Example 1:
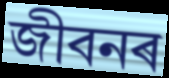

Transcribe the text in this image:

জীবনৰ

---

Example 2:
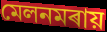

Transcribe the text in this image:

মেলনমৰায়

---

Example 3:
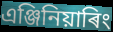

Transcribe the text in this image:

এঞ্জিনিয়াৰিং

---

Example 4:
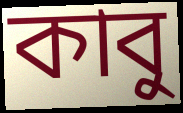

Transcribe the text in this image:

কাবু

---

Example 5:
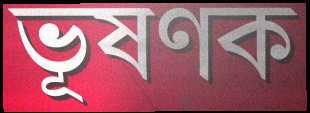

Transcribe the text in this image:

ভূষণক